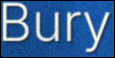
Bury